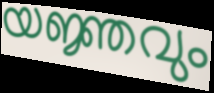
യജ്ഞവും